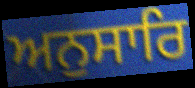
ਅਨੁਸਾਰਿ